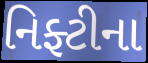
નિફ્ટીના